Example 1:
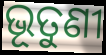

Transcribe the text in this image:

ଭୂତୁଣୀ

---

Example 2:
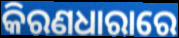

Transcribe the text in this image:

କିରଣଧାରାରେ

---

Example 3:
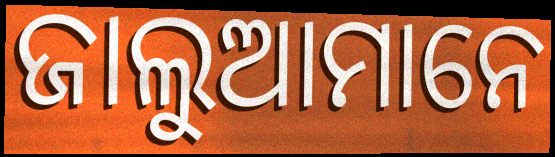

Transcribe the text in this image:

ଜାଲୁଆମାନେ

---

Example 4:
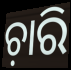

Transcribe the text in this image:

ଚ଼ାରି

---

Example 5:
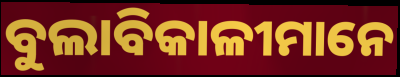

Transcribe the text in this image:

ବୁଲାବିକାଳୀମାନେ